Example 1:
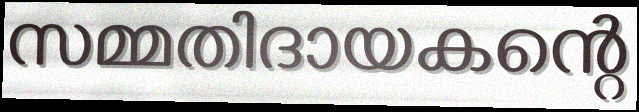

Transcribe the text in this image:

സമ്മതിദായകന്റെ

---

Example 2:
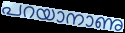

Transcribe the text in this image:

പറയാനാണു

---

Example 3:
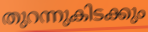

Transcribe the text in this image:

തുറന്നുകിടക്കും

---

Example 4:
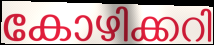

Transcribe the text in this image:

കോഴിക്കറി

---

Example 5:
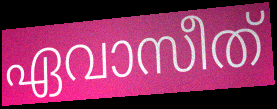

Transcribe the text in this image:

ഏവാസീത്